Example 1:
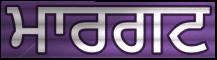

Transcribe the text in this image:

ਮਾਰਗਟ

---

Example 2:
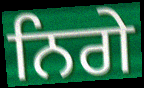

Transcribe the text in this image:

ਨਿਗੇ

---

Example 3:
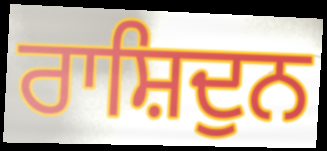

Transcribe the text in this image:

ਰਾਸ਼ਿਦੁਨ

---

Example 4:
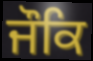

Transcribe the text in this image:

ਜੌਕਿ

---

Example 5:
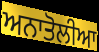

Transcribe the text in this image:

ਅਨਾਤੋਲੀਆ